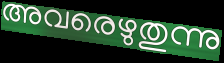
അവരെഴുതുന്നു